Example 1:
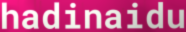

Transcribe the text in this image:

hadinaidu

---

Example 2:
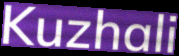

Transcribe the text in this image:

Kuzhali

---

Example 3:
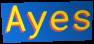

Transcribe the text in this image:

Ayes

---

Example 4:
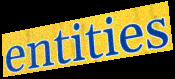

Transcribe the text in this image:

entities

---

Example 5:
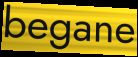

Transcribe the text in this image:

begane